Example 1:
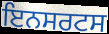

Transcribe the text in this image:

ਇਨਸਰਟਸ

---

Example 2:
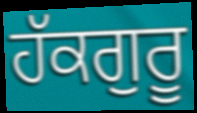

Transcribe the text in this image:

ਹੱਕਗੁਰੂ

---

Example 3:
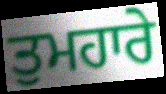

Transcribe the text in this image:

ਤੁਮਹਾਰੇ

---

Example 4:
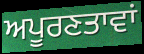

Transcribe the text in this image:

ਅਪੂਰਣਤਾਵਾਂ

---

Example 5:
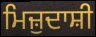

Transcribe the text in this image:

ਮਿਜ਼ੁਦਾਸ਼ੀ